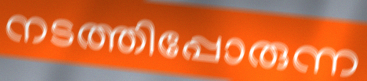
നടത്തിപ്പോരുന്ന